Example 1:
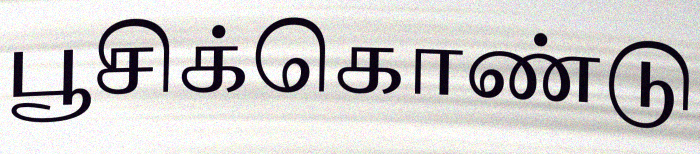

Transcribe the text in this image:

பூசிக்கொண்டு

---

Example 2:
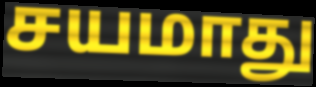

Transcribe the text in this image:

சயமாது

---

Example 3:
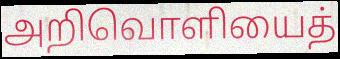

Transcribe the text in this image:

அறிவொளியைத்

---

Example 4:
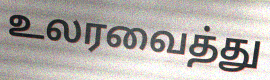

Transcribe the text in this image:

உலரவைத்து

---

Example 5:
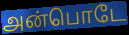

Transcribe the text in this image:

அன்பொடே